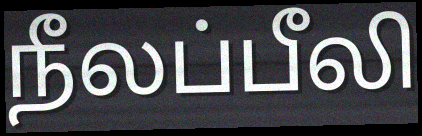
நீலப்பீலி